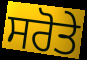
ਸਰੋਤੇ